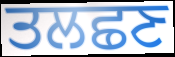
ਤਲਛਣ